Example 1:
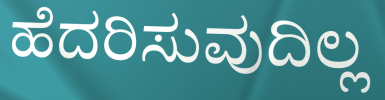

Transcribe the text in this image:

ಹೆದರಿಸುವುದಿಲ್ಲ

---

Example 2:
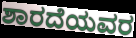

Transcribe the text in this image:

ಶಾರದೆಯವರ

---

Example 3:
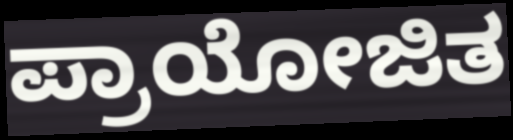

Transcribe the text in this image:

ಪ್ರಾಯೋಜಿತ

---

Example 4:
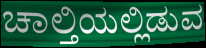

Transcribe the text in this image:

ಚಾಲ್ತಿಯಲ್ಲಿಡುವ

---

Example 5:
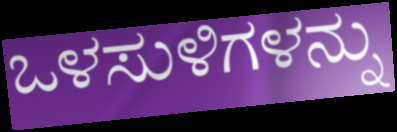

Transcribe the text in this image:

ಒಳಸುಳಿಗಳನ್ನು